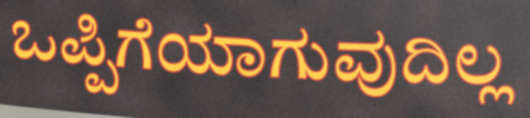
ಒಪ್ಪಿಗೆಯಾಗುವುದಿಲ್ಲ